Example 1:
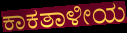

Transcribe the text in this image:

ಕಾಕತಾಳೀಯ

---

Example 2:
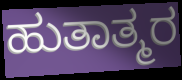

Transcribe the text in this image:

ಹುತಾತ್ಮರ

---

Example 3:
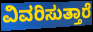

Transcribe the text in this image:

ವಿವರಿಸುತ್ತಾರೆ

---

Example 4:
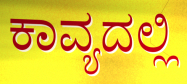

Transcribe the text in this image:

ಕಾವ್ಯದಲ್ಲಿ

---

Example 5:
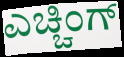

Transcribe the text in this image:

ಎಚ್ಚಿಂಗ್